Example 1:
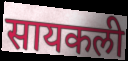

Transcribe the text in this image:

सायकली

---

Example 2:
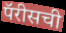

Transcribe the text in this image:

पॅरीसची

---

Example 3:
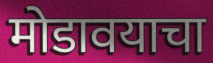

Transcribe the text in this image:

मोडावयाचा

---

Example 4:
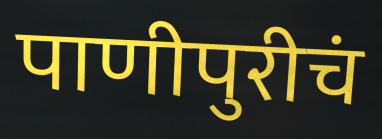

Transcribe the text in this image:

पाणीपुरीचं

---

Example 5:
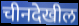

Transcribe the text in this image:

चीनदेखील